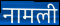
नामली